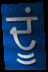
ਦੂਂ